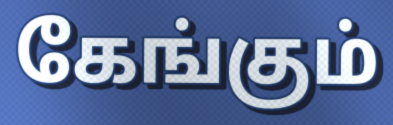
கேங்கும்